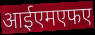
आईएमएफए